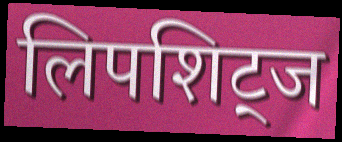
लिपशिट्ज